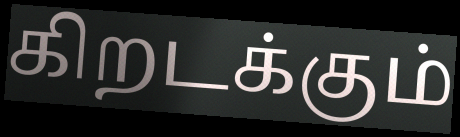
கிறடக்கும்